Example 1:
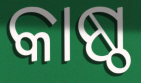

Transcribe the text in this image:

କାଷ୍ଠ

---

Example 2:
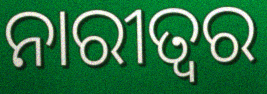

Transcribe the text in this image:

ନାରୀତ୍ଵର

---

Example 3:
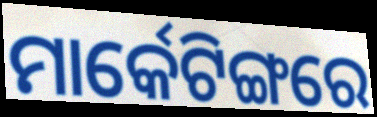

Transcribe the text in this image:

ମାର୍କେଟିଙ୍ଗରେ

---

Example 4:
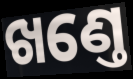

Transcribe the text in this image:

ଖଣ୍ତେ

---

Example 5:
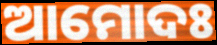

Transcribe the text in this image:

ଆମୋଦଃ